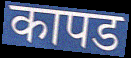
कापड